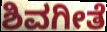
ಶಿವಗೀತೆ